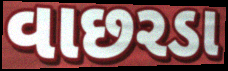
વાછરડા